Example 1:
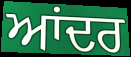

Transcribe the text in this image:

ਆਂਦਰ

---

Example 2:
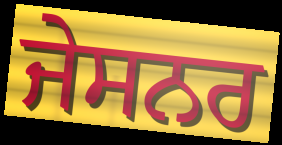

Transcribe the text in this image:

ਜੇਸਨਰ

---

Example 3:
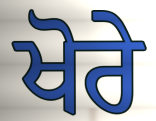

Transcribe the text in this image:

ਖੋਰੇ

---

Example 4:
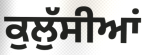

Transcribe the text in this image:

ਕੁਲੁੱਸੀਆਂ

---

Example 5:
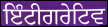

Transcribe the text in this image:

ਇੰਟੀਗਰੇਟਿਵ